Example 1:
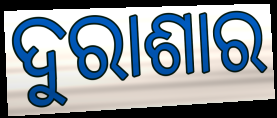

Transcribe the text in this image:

ଦୁରାଶାର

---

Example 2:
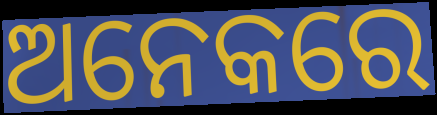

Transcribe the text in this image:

ଅନେକରେ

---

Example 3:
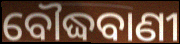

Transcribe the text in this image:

ବୌଦ୍ଧବାଣୀ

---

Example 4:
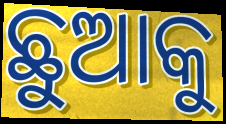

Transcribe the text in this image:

ଛୁଆକୁ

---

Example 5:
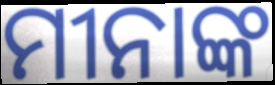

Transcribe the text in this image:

ମୀନାଙ୍କ